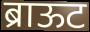
ब्राऊट